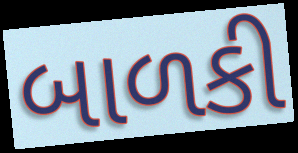
બાળકી